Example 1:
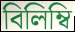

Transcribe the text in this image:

বিলিম্বি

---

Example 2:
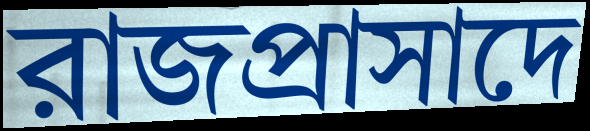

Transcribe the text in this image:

রাজপ্রাসাদে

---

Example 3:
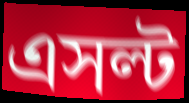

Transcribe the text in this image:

এসল্ট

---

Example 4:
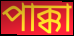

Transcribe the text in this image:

পাক্কা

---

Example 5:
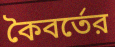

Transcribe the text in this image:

কৈবর্তের